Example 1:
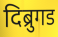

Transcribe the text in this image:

दिब्रुगड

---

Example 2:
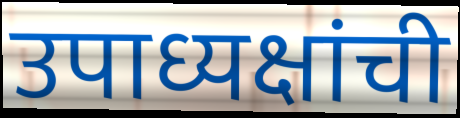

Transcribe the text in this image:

उपाध्यक्षांची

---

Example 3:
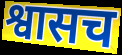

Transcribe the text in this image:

श्वासच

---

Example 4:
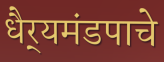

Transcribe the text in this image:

धैर्यमंडपाचे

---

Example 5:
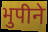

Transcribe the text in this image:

भुपीने